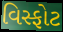
વિસ્ફોટ